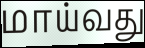
மாய்வது